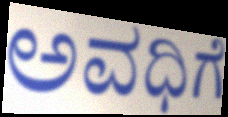
ಅವಧಿಗೆ